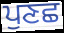
ਪੁਣਛ